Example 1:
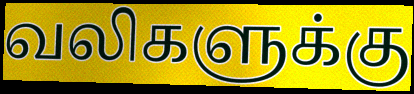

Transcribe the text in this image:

வலிகளுக்கு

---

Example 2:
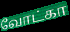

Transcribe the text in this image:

வோட்கா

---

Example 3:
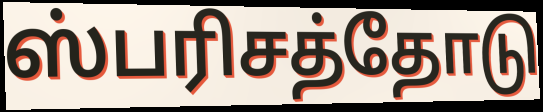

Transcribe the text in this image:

ஸ்பரிசத்தோடு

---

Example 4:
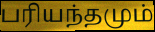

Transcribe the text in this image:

பரியந்தமும்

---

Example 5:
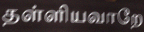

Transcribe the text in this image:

தள்ளியவாறே